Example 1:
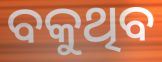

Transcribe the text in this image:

ବକୁଥିବ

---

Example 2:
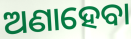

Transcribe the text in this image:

ଅଣାହେବା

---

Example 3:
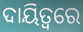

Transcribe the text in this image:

ଦାୟିତ୍ବରେ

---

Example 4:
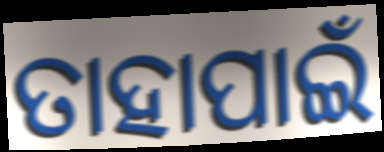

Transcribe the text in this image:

ତାହାପାଇଁ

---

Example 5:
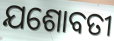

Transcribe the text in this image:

ଯଶୋବତୀ